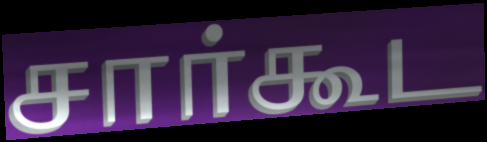
சார்கூட